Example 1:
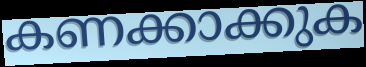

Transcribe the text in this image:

കണക്കാക്കുക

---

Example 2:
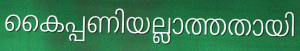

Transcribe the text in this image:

കൈപ്പണിയല്ലാത്തതായി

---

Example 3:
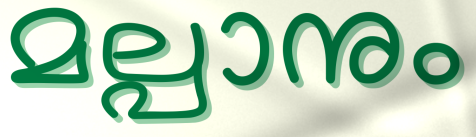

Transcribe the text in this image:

മല്പാനും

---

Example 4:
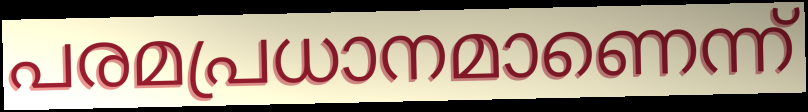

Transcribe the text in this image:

പരമപ്രധാനമാണെന്ന്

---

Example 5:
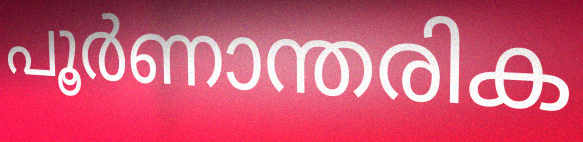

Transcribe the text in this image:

പൂർണാന്തരിക